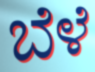
ಬೆಳೆ